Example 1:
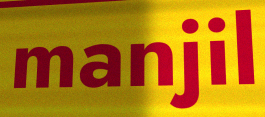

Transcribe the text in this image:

manjil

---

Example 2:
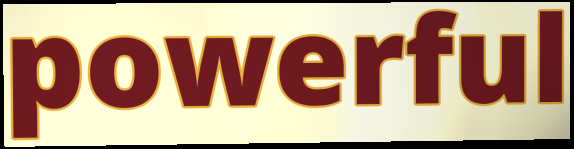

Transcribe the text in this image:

powerful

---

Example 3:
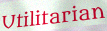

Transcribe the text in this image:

Utilitarian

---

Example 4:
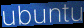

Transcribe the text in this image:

ubuntu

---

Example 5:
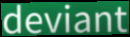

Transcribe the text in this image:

deviant